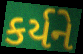
કર્યને